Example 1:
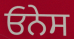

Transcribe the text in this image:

ਓਨੇਸ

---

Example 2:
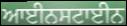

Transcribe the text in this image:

ਆਈਨਸਟਾਈਨ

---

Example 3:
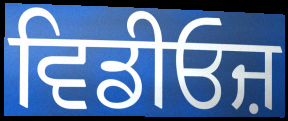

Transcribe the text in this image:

ਵਿਡੀਓਜ਼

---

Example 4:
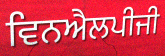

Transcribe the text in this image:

ਵਿਨਐਲਪੀਜੀ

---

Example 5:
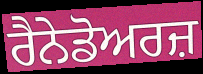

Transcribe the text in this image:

ਰੈਨੇਡੋਅਰਜ਼